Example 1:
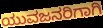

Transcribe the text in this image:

ಯುವಜನರಿಗಾಗಿ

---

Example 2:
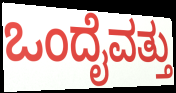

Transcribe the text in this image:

ಒಂದೈವತ್ತು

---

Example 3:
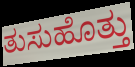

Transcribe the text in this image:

ತುಸುಹೊತ್ತು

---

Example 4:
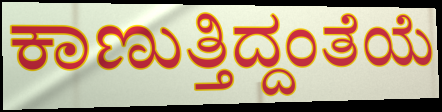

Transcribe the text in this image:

ಕಾಣುತ್ತಿದ್ದಂತೆಯೆ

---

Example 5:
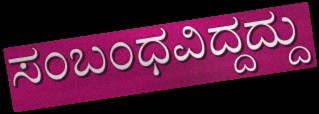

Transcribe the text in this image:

ಸಂಬಂಧವಿದ್ದದ್ದು